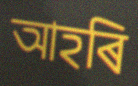
আহৰি